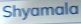
Shyamala